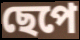
ছেপে